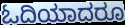
ಓದಿಯಾದರೂ